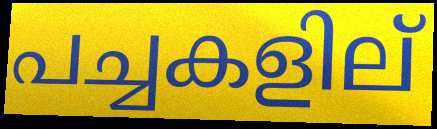
പച്ചകളില്